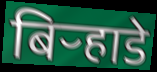
बिऱ्हाडे